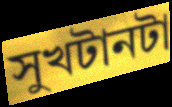
সুখটানটা